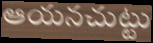
ఆయనచుట్టు